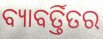
ବ୍ୟାବର୍ତ୍ତିତର